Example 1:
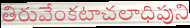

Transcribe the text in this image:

తిరువేంకటాచలాధిపుని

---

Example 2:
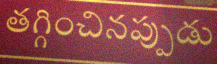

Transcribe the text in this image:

తగ్గించినప్పుడు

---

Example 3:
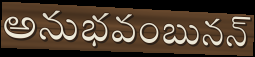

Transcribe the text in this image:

అనుభవంబునన్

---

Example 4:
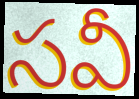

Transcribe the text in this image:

సవీ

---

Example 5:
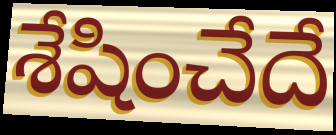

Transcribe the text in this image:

శేషించేదే